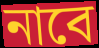
নাবে